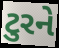
ટુરને